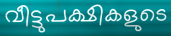
വീട്ടുപക്ഷികളുടെ